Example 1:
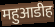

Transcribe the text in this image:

महुआडीह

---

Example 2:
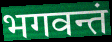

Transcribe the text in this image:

भगवन्तं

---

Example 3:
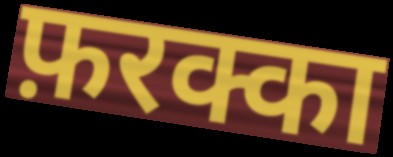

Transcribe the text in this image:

फ़रक्का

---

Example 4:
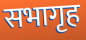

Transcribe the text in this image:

सभागृह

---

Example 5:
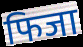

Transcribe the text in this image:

फिजा